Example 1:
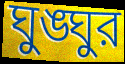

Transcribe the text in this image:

ঘুঙ্ঘুর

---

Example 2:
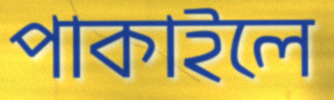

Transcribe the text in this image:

পাকাইলে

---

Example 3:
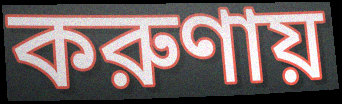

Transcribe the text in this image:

করুণায়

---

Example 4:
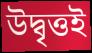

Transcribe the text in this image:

উদ্বৃত্তই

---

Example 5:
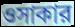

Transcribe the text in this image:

ওসাকার